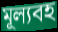
মূল্যবহ